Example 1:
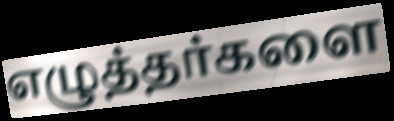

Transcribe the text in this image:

எழுத்தர்களை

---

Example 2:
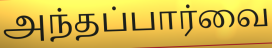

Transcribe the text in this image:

அந்தப்பார்வை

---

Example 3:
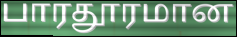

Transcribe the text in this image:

பாரதூரமான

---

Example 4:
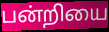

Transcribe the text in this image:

பன்றியை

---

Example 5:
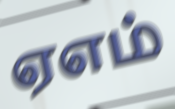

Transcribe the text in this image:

ஏஎம்